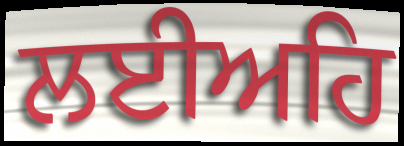
ਲਈਅਹਿ